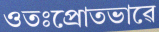
ওতঃপ্ৰোতভাৱে